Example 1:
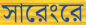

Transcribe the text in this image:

সারেংরে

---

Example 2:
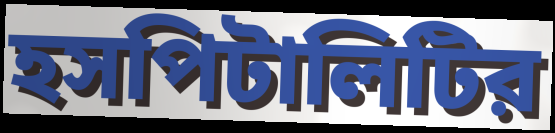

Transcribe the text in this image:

হসপিটালিটির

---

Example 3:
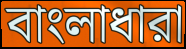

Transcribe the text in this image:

বাংলাধারা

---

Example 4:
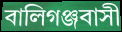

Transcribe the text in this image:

বালিগঞ্জবাসী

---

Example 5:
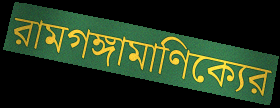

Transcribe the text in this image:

রামগঙ্গামাণিক্যের